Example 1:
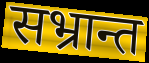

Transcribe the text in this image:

सभ्रान्त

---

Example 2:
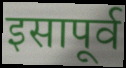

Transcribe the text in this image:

इसापूर्व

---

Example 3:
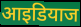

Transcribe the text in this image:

आइडियाज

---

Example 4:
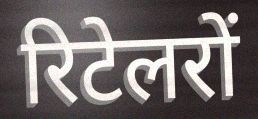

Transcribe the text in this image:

रिटेलरों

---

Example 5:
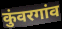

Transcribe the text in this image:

कुंवरगांव